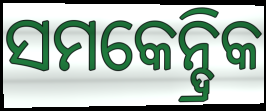
ସମକେନ୍ଦ୍ରିକ